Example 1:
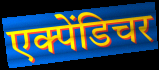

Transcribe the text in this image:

एक्पेंडिचर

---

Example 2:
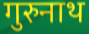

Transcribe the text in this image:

गुरुनाथ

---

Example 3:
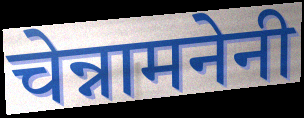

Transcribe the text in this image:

चेन्नामनेनी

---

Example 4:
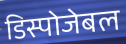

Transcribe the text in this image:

डिस्पोजेबल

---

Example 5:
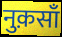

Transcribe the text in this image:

नुक़साँ